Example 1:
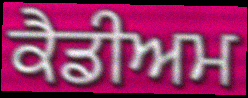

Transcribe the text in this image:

ਕੈਡੀਅਮ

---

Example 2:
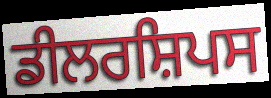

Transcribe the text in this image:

ਡੀਲਰਸ਼ਿਪਸ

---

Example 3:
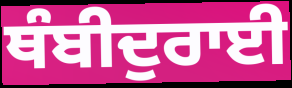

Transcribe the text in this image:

ਥੰਬੀਦੁਰਾਈ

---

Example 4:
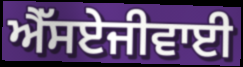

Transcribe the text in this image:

ਐੱਸਏਜੀਵਾਈ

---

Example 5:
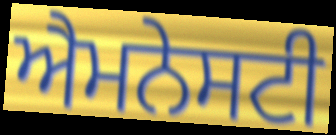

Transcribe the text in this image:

ਐਮਨੇਸਟੀ